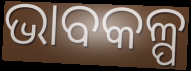
ଭାବକଳ୍ପ